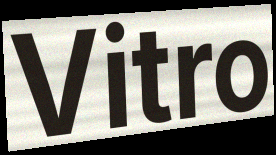
Vitro